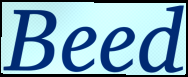
Beed